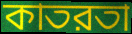
কাতরতা